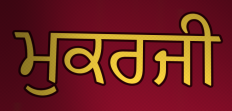
ਮੁਕਰਜੀ